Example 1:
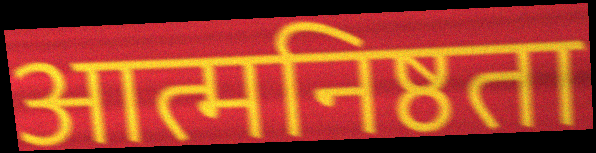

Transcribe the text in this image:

आत्मनिष्ठता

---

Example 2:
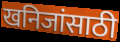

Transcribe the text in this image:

खनिजांसाठी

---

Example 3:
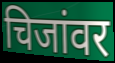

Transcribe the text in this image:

चिजांवर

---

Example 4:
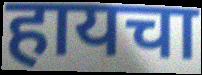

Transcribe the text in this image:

हायचा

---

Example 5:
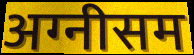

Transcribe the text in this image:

अग्नीसम